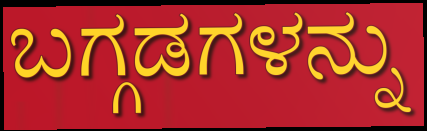
ಬಗ್ಗಡಗಳನ್ನು